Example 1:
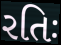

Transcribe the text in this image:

રતિઃ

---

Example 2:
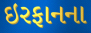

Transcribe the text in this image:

ઇરફાનના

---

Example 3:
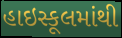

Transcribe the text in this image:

હાઇસ્કૂલમાંથી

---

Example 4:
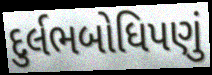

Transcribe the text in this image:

દુર્લભબોધિપણું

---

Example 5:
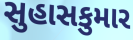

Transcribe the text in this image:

સુહાસકુમાર